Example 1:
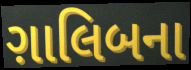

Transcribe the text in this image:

ગ઼ાલિબના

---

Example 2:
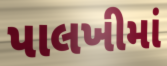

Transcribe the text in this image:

પાલખીમાં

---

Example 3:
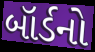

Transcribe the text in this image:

બૉર્ડનો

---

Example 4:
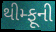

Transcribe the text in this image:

થીમ્ફૂની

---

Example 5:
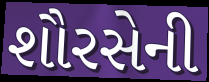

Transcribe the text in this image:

શૌરસેની